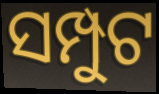
ସମ୍ପୁଟ